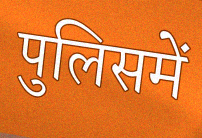
पुलिसमें